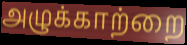
அழுக்காற்றை